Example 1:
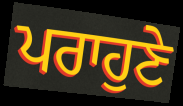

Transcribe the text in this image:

ਪਰਾਹੁਣੇ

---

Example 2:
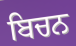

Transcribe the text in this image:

ਬਿਚਨ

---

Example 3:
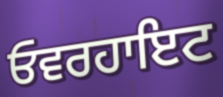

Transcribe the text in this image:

ਓਵਰਹਾਇਟ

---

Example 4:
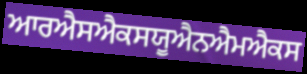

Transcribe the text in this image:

ਆਰਐਸਐਕਸਯੂਐਨਐਮਐਕਸ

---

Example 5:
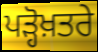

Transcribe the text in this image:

ਪੜ੍ਹੋਖ਼ਤਰੇ